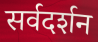
सर्वदर्शन